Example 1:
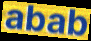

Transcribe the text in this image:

abab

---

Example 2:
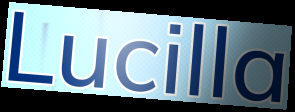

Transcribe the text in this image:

Lucilla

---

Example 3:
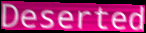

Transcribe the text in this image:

Deserted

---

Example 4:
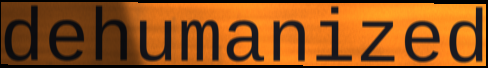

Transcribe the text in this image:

dehumanized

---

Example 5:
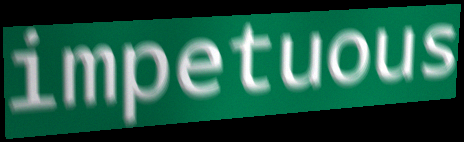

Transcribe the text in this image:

impetuous